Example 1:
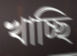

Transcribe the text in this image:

খাচ্ছি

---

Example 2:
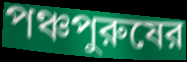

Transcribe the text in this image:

পঞ্চপুরুষের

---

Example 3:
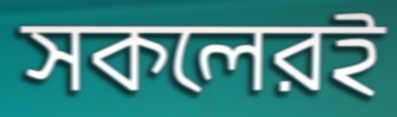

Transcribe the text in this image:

সকলেরই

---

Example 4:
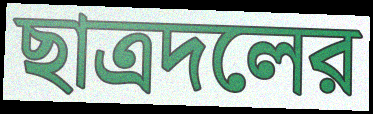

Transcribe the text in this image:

ছাত্রদলের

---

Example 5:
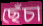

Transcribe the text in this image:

ছেঁচা